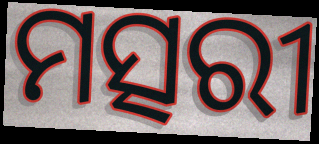
ମତ୍ସରୀ